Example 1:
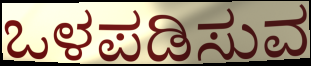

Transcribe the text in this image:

ಒಳಪಡಿಸುವ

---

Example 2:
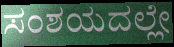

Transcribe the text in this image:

ಸಂಶಯದಲ್ಲೇ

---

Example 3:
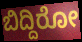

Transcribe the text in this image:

ಬಿದ್ದಿರೋ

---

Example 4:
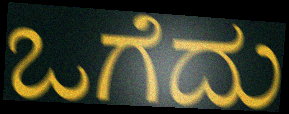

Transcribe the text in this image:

ಒಗೆದು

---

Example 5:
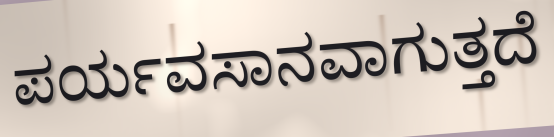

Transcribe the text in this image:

ಪರ್ಯವಸಾನವಾಗುತ್ತದೆ